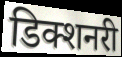
डिक्शनरी